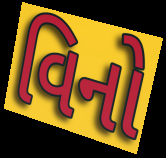
વિનો